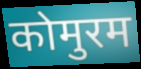
कोमुरम